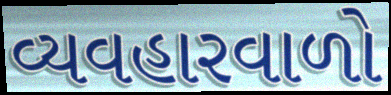
વ્યવહારવાળો